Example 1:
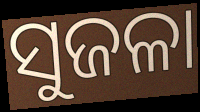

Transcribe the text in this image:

ସୁଜଳା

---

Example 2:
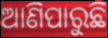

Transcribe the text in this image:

ଆଣିପାରୁଛି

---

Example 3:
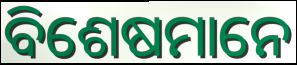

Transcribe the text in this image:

ବିଶେଷମାନେ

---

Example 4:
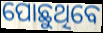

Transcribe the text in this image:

ପୋଛୁଥିବେ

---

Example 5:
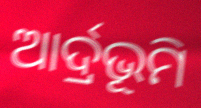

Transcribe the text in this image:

ଆର୍ଦ୍ରଭୂମି